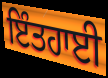
ਇੰਤਹਾਈ